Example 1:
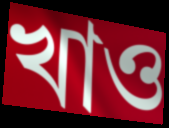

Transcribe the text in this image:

খাও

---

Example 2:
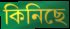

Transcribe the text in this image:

কিনিছে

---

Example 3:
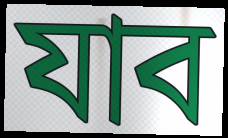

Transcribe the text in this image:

যাব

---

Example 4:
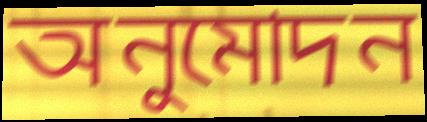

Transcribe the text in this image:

অনুমোদন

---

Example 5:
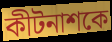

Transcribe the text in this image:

কীটনাশকে